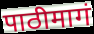
पाठीमागं